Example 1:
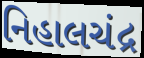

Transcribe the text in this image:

નિહાલચંદ્ર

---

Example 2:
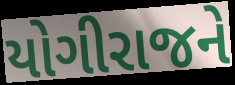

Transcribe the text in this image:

યોગીરાજને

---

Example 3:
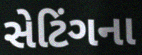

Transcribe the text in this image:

સેટિંગના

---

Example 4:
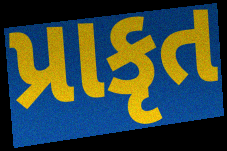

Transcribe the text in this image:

પ્રાકૃત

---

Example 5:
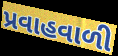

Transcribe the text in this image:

પ્રવાહવાળી